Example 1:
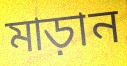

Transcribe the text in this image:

মাড়ান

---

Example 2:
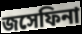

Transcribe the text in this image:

জসেফিনা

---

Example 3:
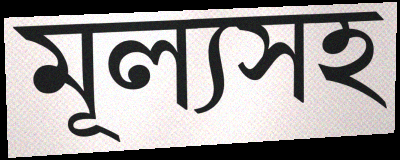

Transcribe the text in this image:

মূল্যসহ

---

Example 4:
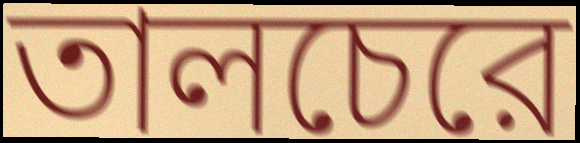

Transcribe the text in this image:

তালচেরে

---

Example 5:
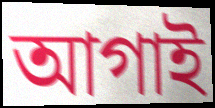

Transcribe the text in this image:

আগাই